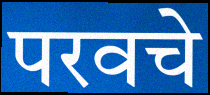
परवचे